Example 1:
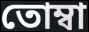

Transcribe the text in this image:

তোম্বা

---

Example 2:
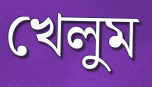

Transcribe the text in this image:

খেলুম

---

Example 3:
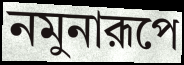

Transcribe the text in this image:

নমুনারূপে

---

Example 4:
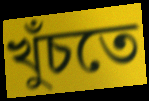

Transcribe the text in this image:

খুঁচতে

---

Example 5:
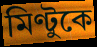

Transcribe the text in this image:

মিণ্টুকে